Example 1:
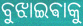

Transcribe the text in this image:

ବୁଝାଇଵାକୁ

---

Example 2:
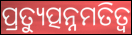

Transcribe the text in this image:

ପ୍ରତ୍ୟୁତ୍ପନ୍ନମତିତ୍ୱ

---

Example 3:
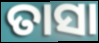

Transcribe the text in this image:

ତାସା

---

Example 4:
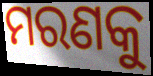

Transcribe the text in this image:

ମରଣକୁ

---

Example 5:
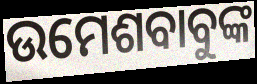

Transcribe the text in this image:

ଉମେଶବାବୁଙ୍କ